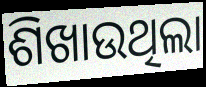
ଶିଖାଉଥିଲା